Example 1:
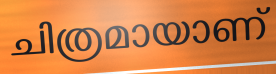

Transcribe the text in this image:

ചിത്രമായാണ്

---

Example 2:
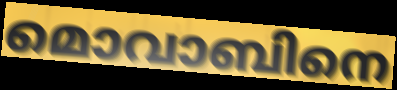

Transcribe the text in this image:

മൊവാബിനെ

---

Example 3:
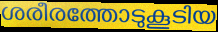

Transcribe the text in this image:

ശരീരത്തോടുകൂടിയ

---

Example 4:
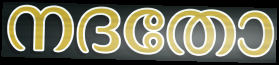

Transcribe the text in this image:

നദതോ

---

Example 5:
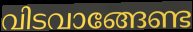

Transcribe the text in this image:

വിടവാങ്ങേണ്ട